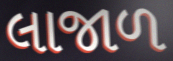
લાજાળ